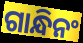
ଗାନ୍ଧିନଂ